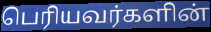
பெரியவர்களின்